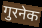
गुरनेक